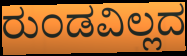
ರುಂಡವಿಲ್ಲದ